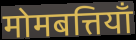
मोमबत्तियाँ